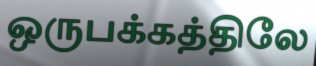
ஒருபக்கத்திலே